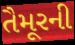
તૈમૂરની